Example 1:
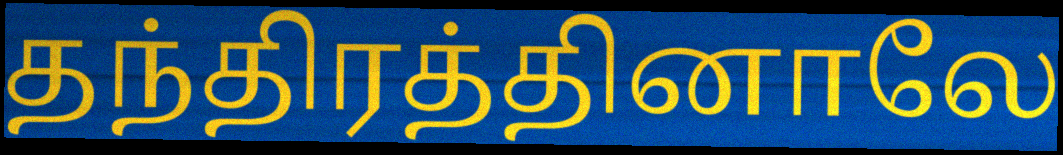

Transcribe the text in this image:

தந்திரத்தினாலே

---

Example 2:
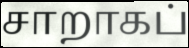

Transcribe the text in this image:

சாறாகப்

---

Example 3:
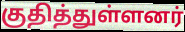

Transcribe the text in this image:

குதித்துள்ளனர்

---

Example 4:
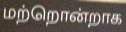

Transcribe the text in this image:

மற்றொன்றாக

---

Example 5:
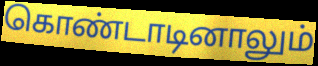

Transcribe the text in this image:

கொண்டாடினாலும்